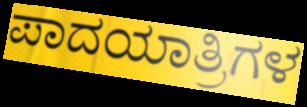
ಪಾದಯಾತ್ರಿಗಳ